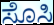
ಸೊಸಿ